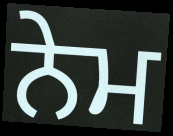
ਨੇਮ